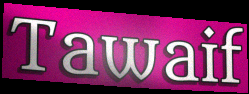
Tawaif